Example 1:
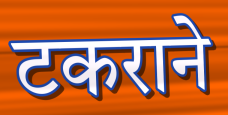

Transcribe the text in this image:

टकराने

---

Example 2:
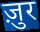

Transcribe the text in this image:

ज़ुर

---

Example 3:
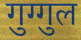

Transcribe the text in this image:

गुग्गुल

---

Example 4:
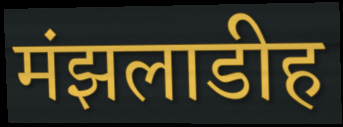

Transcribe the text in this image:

मंझलाडीह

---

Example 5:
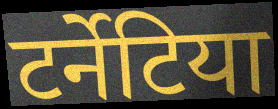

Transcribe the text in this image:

टर्नेटिया